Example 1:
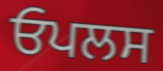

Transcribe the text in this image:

ਓਪਲਸ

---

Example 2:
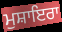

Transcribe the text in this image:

ਮੁਸ਼ਾਇਰਾ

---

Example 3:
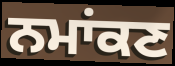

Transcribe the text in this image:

ਨਮਾਂਕਣ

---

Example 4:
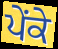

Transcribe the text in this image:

ਪੇਂਕੇ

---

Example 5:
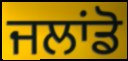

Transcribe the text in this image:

ਜਲਾਂਡੋ